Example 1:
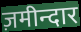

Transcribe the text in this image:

ज़मीन्दार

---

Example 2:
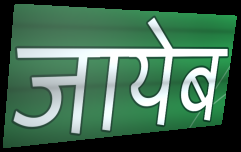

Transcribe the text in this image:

जायेब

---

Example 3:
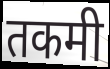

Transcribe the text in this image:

तकमी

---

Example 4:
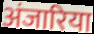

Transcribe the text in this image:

अंजारिया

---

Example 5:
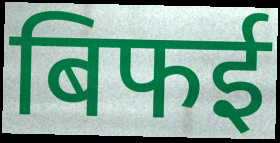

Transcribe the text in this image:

बिफई